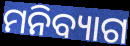
ମନିବ୍ୟାଗ